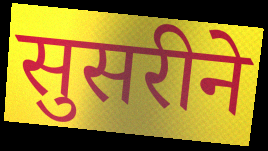
सुसरीने